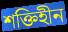
শক্তিহীন